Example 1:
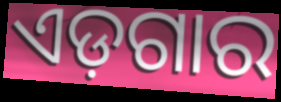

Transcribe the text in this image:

ଏଡ଼ଗାର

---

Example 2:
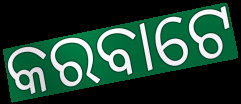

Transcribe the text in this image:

କରବାଟେ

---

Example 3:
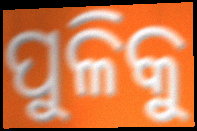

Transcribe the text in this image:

ପୁଳିକୁ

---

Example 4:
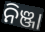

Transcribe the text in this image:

ନିଞ୍ଜା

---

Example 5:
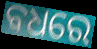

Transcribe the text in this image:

ବଧରେ